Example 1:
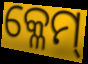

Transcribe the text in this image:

କ୍ଳେମ୍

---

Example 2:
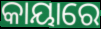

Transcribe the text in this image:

କାୟାରେ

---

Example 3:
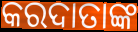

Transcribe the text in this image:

କରଦାତାଙ୍କ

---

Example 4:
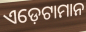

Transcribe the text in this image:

ଏଡ଼େଟାମାନ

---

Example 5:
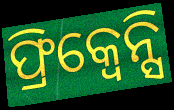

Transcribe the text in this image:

ଫ୍ରିକ୍ୱେନ୍ସି